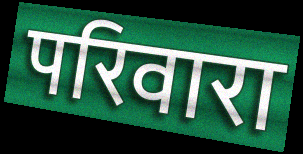
परिवारा